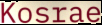
Kosrae